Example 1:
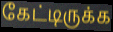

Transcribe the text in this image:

கேட்டிருக்க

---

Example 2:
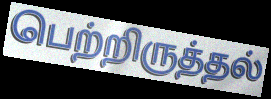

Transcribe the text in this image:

பெற்றிருத்தல்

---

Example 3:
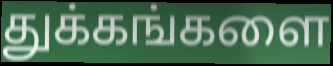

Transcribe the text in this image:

துக்கங்களை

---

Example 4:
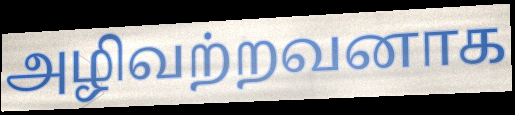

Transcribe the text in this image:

அழிவற்றவனாக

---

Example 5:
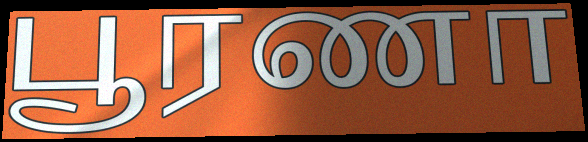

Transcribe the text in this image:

பூரணா